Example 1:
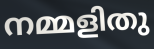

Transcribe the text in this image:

നമ്മളിതു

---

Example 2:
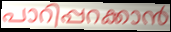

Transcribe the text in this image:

പാറിപ്പറക്കാൻ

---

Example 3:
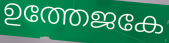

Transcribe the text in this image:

ഉത്തേജകേ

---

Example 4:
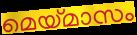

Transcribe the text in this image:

മെയ്മാസം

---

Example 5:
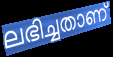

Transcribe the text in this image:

ലഭിച്ചതാണ്